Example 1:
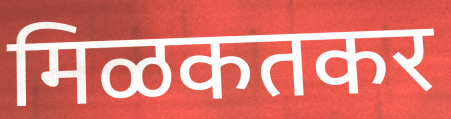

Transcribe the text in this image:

मिळकतकर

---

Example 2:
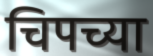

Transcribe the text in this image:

चिपच्या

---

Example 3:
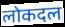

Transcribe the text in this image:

लोकदल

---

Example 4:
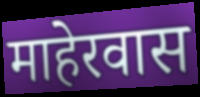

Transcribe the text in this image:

माहेरवास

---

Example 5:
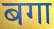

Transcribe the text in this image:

बगा